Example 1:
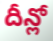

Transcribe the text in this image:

దీన్లో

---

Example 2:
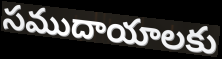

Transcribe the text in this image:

సముదాయాలకు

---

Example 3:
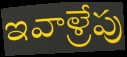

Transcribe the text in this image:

ఇవాళ్రేపు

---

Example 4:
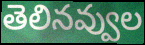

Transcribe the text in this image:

తెలినవ్వుల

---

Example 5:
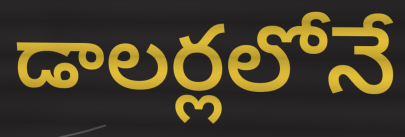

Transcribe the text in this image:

డాలర్లలోనే